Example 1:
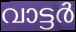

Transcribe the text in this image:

വാട്ടർ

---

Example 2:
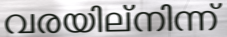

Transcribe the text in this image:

വരയില്നിന്ന്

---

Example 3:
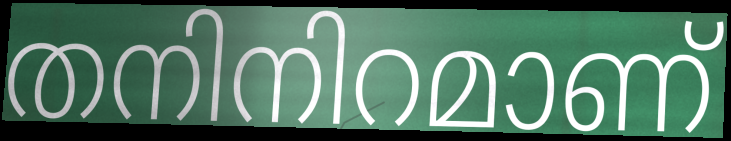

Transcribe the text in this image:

തനിനിറമാണ്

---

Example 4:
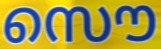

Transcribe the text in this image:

സൌ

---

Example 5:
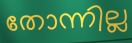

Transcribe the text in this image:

തോന്നില്ല